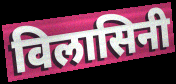
विलासिनी